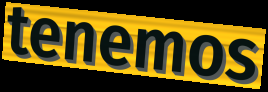
tenemos